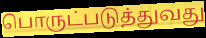
பொருட்படுத்துவது